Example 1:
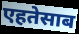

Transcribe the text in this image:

एहतेसाब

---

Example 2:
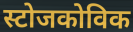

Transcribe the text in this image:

स्टोजकोविक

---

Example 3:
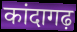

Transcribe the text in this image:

कांदागढ़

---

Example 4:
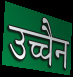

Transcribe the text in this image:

उच्चैन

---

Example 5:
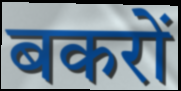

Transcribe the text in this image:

बकरों